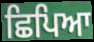
ਛਿਪਿਆ